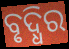
ବୃଦ୍ଧିର